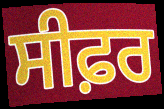
ਸੀਫ਼ਰ